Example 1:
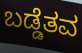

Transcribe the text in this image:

ಬಡ್ಡೆತವ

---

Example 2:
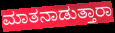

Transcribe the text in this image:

ಮಾತನಾಡುತ್ತಾರಾ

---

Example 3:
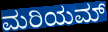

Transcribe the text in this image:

ಮರಿಯಮ್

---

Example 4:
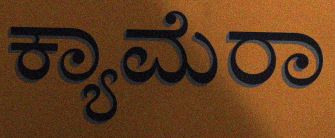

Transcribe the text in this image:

ಕ್ಯಾಮೆರಾ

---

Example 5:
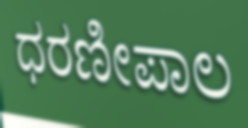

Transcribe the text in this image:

ಧರಣೀಪಾಲ